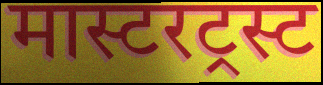
मास्टरट्रस्ट